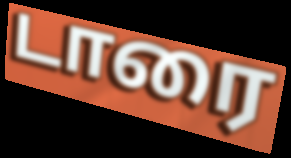
டாரை